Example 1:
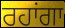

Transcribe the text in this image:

ਰਹਾਂਗਾ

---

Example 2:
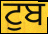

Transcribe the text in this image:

ਟੁਬ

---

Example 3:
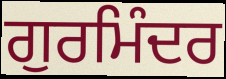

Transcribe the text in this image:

ਗੁਰਮਿੰਦਰ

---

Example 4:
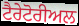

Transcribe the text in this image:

ਟੈਰੇਟੋਰੀਅਲ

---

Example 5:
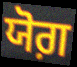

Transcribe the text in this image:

ਯੋਗ਼